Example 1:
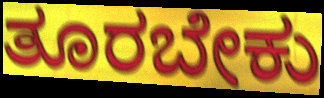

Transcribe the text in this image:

ತೂರಬೇಕು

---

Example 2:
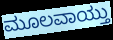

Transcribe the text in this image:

ಮೂಲವಾಯ್ತು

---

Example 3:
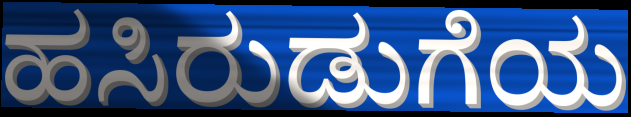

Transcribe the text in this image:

ಹಸಿರುಡುಗೆಯ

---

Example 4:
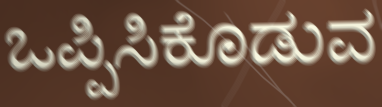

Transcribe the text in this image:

ಒಪ್ಪಿಸಿಕೊಡುವ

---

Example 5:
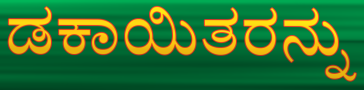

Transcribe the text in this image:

ಡಕಾಯಿತರನ್ನು